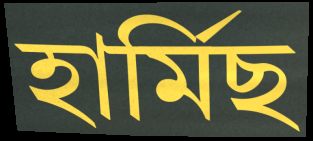
হাৰ্মিছ